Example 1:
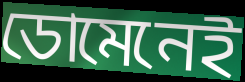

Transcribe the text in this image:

ডোমেনেই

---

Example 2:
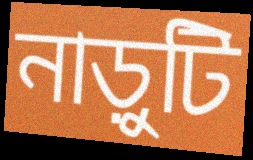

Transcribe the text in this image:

নাড়ুটি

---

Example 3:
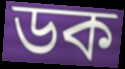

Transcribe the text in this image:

ডক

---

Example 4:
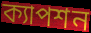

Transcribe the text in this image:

ক্যাপশন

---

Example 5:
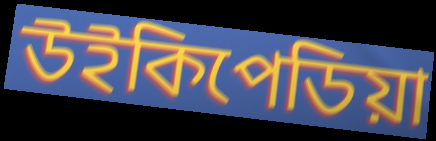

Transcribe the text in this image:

উইকিপেডিয়া